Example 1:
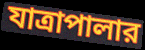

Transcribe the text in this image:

যাত্রাপালার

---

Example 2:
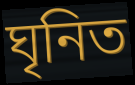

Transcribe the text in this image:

ঘৃনিত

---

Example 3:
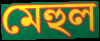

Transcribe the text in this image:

মেহুল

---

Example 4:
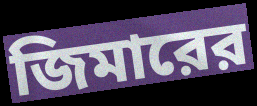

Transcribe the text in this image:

জিমারের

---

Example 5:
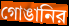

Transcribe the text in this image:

গোঙানির